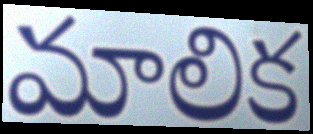
మాలిక